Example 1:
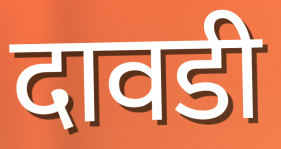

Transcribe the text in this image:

दावडी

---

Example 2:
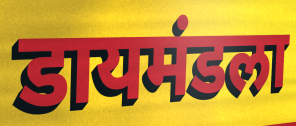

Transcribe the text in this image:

डायमंडला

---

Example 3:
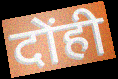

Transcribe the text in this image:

दोंही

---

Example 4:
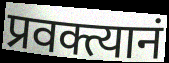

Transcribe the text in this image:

प्रवक्त्यानं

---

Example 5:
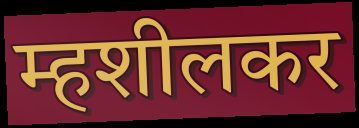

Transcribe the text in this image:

म्हशीलकर